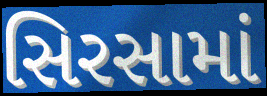
સિરસામાં